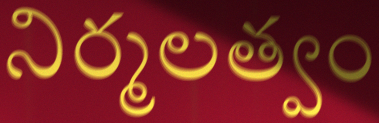
నిర్మలత్వం